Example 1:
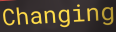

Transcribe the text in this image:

Changing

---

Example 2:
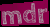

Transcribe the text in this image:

mdr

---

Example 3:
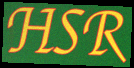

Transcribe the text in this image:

HSR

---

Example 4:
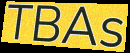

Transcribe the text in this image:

TBAs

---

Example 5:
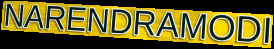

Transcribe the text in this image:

NARENDRAMODI